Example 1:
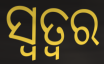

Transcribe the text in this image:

ସ୍ୱତ୍ୱର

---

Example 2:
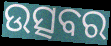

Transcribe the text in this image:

ଉତ୍ସବର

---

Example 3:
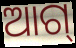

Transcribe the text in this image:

ଆଗ୍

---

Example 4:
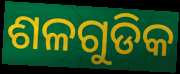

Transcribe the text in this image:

ଶଳଗୁଡିକ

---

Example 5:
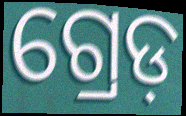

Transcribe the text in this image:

ଗ୍ରେଡ଼